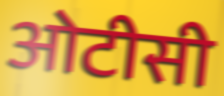
ओटीसी